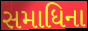
સમાધિના